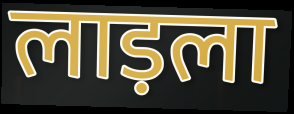
लाड़ला